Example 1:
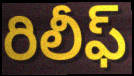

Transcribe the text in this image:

రిలీఫ్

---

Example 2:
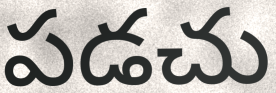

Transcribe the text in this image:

పడచు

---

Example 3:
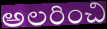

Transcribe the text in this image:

అలరించి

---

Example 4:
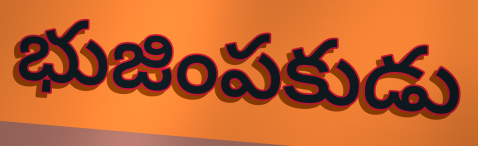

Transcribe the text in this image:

భుజింపకుడు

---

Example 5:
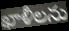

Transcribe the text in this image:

ఖాళీలను